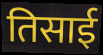
तिसाई